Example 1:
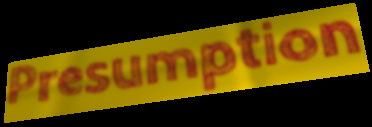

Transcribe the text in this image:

Presumption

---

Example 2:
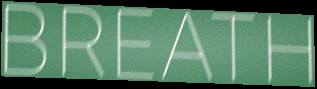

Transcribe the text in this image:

BREATH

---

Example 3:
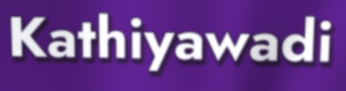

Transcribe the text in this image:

Kathiyawadi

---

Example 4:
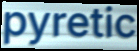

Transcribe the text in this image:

pyretic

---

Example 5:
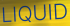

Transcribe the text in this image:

LIQUID